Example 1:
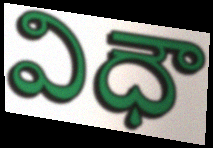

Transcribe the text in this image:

విధౌ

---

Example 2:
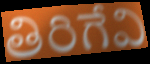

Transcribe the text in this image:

తిరిగేవి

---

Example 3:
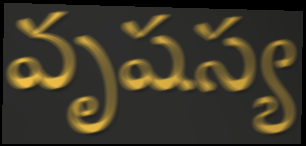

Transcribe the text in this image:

వృషస్య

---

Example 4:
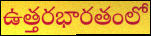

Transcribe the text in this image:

ఉత్తరభారతంలో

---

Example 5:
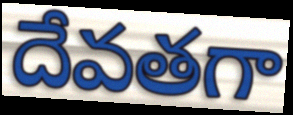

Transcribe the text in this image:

దేవతగా